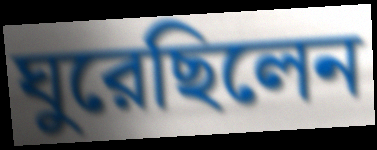
ঘুরেছিলেন